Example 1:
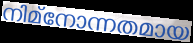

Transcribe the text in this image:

നിമ്നോന്നതമായ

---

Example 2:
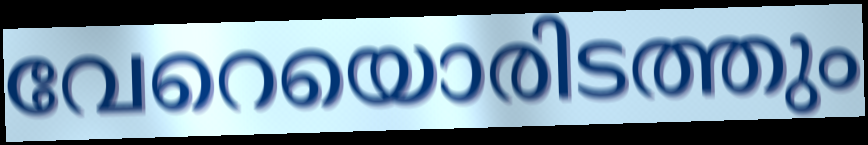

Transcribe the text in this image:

വേറെയൊരിടത്തും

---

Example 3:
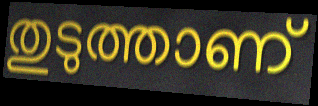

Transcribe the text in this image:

തുടുത്താണ്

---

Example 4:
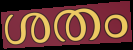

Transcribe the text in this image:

ശതം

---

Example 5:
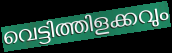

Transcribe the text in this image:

വെട്ടിത്തിളക്കവും